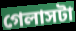
গেলাসটা